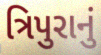
ત્રિપુરાનું